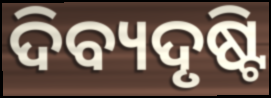
ଦିବ୍ୟଦୃଷ୍ଟି